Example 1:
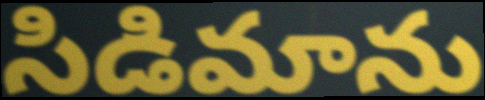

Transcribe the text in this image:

సిడిమాను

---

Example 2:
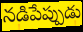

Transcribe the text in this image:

నడిపేప్పుడు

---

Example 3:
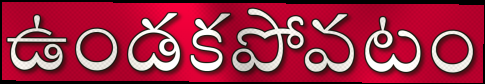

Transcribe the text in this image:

ఉండకపోవటం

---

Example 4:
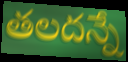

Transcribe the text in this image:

తలదన్నే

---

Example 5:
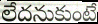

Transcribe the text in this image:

లేదనుకుంటే